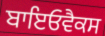
ਬਾਇਓਵੈਕਸ